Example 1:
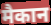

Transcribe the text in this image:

मैकान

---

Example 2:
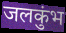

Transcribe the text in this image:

जलकुंभ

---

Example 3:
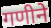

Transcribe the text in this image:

गणीने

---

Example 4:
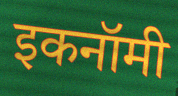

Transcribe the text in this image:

इकनॉमी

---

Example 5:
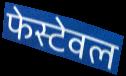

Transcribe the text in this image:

फेस्टेवल